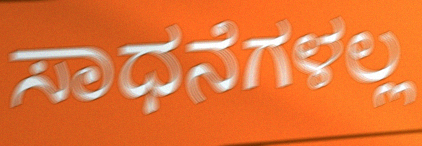
ಸಾಧನೆಗಳಲ್ಲ